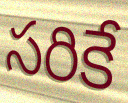
సరికే